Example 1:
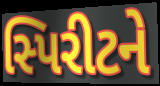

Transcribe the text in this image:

સ્પિરીટને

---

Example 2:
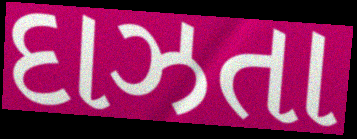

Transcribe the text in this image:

દાઝતા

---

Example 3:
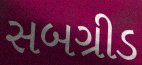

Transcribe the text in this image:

સબગ્રીડ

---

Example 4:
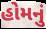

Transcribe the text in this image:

હોમનું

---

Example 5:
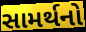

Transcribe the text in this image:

સામર્થનો